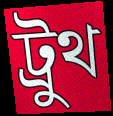
ট্রুথ